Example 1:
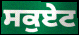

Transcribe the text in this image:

ਸਕੁਏਟ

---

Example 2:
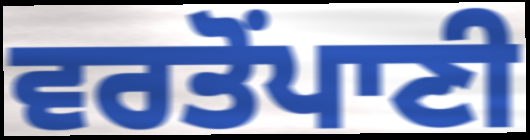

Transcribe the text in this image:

ਵਰਤੋਂਪਾਣੀ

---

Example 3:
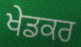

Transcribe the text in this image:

ਖੇਡਕਰ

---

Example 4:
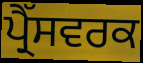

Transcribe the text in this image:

ਪ੍ਰੈੱਸਵਰਕ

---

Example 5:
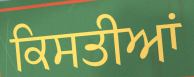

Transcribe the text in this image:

ਕਿਸਤੀਆਂ